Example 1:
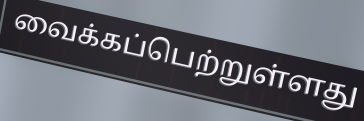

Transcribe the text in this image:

வைக்கப்பெற்றுள்ளது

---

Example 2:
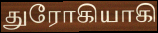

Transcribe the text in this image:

துரோகியாகி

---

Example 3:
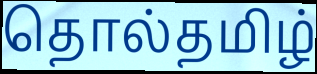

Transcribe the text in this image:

தொல்தமிழ்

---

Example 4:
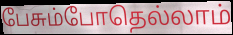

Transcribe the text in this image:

பேசும்போதெல்லாம்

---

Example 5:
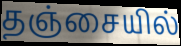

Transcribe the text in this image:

தஞ்சையில்